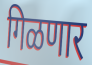
गिळणार